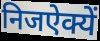
निजऐक्यें